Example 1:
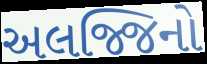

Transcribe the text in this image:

અલજ્જિનો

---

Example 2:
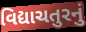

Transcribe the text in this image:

વિદ્યાચતુરનું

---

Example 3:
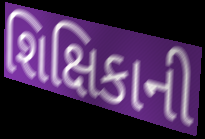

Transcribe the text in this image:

શિક્ષિકાની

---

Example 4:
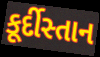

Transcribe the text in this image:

કૂર્દીસ્તાન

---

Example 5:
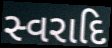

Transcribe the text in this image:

સ્વરાદિ